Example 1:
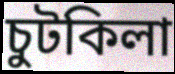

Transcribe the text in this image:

চুটকিলা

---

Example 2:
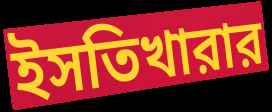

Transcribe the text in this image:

ইসতিখারার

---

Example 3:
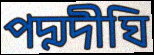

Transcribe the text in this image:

পদ্মদীঘি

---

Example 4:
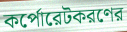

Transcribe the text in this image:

কর্পোরেটকরণের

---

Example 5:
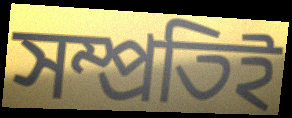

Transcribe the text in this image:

সম্প্রতিই